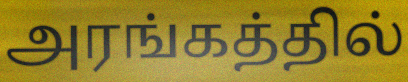
அரங்கத்தில்